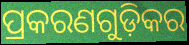
ପ୍ରକରଣଗୁଡ଼ିକର